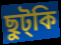
ছুট্কি